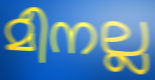
മീനല്ല